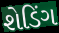
શેડિંગ